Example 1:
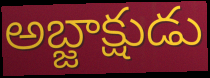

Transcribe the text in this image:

అబ్జాక్షుడు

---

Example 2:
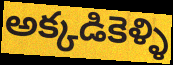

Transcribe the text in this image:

అక్కడికెళ్ళి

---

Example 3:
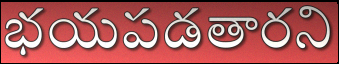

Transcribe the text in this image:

భయపడతారని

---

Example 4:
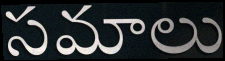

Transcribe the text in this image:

సమాలు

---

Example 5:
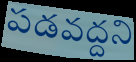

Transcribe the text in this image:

పడవద్దని